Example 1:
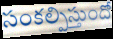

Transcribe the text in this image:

సంకల్పిస్తుందో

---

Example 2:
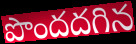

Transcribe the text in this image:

పొందదగిన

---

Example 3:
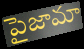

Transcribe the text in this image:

పైజామా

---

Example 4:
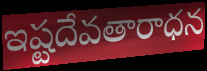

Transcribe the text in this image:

ఇష్టదేవతారాధన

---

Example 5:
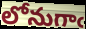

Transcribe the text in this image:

లోనుగాఁ